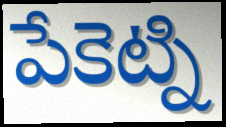
పేకెట్ని